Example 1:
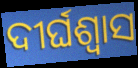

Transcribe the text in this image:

ଦୀର୍ଘଶ୍ବାସ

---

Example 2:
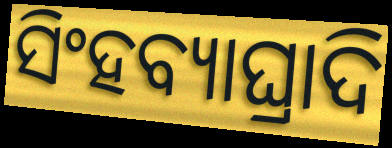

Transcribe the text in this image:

ସିଂହବ୍ୟାଘ୍ରାଦି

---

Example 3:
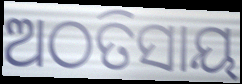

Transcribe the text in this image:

ଅଠତିସାୟ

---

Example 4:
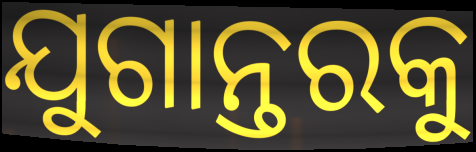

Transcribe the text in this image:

ଯୁଗାନ୍ତରକୁ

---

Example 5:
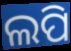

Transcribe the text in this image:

ଲପି